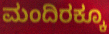
ಮಂದಿರಕ್ಕೂ